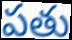
పతు